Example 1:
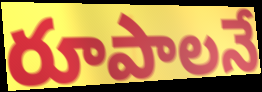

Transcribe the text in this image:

రూపాలనే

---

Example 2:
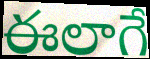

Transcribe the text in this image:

ఈలాగే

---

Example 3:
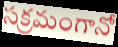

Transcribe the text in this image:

సక్రమంగానో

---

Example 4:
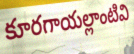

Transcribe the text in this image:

కూరగాయల్లాంటివి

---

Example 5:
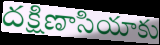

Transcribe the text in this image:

దక్షిణాసియాకు